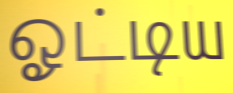
ஓட்டிய